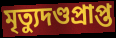
মৃত্যুদণ্ডপ্রাপ্ত